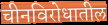
चीनविरोधातील